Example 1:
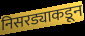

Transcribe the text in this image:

निसरड्याकडून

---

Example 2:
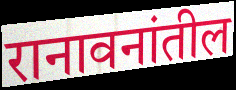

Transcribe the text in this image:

रानावनांतील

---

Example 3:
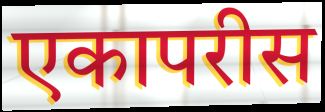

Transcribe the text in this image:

एकापरीस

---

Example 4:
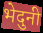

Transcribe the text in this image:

भेदुनी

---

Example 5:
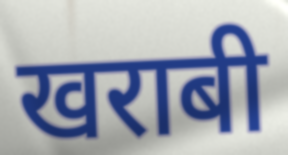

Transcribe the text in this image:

खराबी